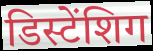
डिस्टेंशिग